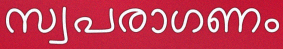
സ്വപരാഗണം